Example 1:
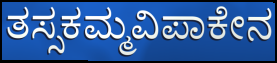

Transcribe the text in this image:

ತಸ್ಸಕಮ್ಮವಿಪಾಕೇನ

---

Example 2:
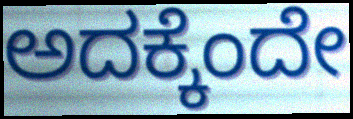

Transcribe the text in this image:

ಅದಕ್ಕೆಂದೇ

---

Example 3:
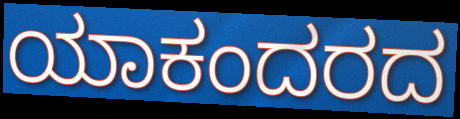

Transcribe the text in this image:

ಯಾಕಂದರದ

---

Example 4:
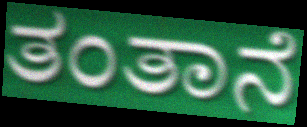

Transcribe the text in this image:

ತಂತಾನೆ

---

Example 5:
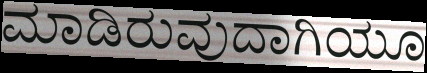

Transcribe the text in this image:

ಮಾಡಿರುವುದಾಗಿಯೂ